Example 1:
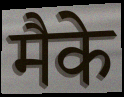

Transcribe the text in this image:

मैके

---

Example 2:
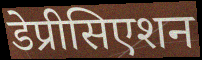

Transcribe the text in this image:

डेप्रीसिएशन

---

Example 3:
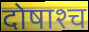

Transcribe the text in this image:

दोषाश्च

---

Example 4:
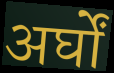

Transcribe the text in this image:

अर्घों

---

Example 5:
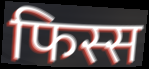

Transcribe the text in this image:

फिस्स